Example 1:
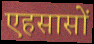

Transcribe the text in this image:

एहसासों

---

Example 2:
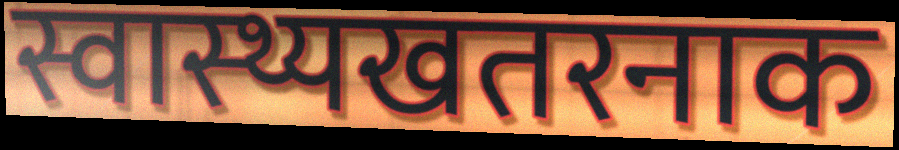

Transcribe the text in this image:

स्वास्थ्यखतरनाक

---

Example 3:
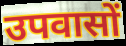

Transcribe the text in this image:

उपवासों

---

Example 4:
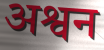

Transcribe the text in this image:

अश्वन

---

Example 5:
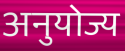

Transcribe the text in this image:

अनुयोज्य